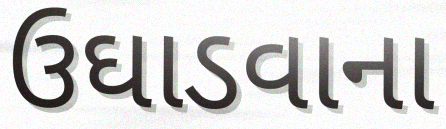
ઉઘાડવાના